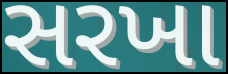
સરખા